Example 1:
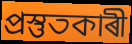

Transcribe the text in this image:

প্ৰস্তুতকাৰী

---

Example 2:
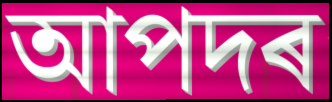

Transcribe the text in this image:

আপদৰ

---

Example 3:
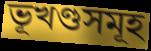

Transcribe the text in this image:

ভূখণ্ডসমূহ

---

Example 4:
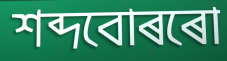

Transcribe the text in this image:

শব্দবোৰৰো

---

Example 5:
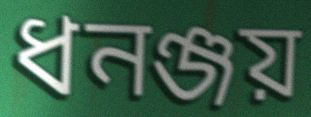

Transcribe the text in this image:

ধনঞ্জয়